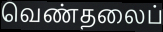
வெண்தலைப்